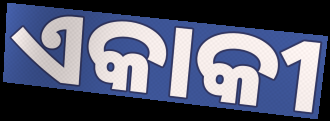
ଏକାକୀ